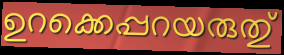
ഉറക്കെപ്പറയരുതു്